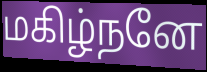
மகிழ்நனே